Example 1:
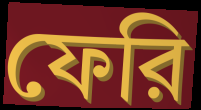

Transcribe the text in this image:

ফেরি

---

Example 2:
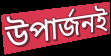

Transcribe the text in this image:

উপার্জনই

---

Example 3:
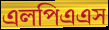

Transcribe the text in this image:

এলপিএএস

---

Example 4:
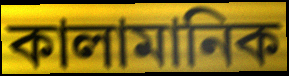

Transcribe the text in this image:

কালামানিক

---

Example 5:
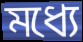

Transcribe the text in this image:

মধ্যে